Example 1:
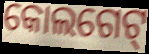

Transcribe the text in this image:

କୋଲଗେଟ୍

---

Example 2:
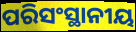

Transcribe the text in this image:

ପରିସଂସ୍ଥାନୀୟ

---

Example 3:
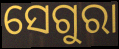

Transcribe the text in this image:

ସେଗୁରା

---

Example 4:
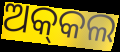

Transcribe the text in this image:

ଅକ୍‌କଲ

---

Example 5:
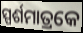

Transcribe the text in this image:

ସ୍ପର୍ଶମାତ୍ରକେ